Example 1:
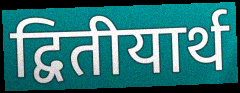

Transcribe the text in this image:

द्वितीयार्थ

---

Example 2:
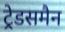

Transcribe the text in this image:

ट्रेडसमैन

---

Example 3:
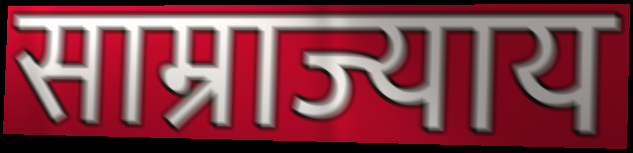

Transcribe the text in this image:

साम्राज्याय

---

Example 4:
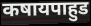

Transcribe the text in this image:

कषायपाहुड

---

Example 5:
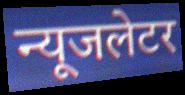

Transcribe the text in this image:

न्यूजलेटर